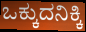
ಒಕ್ಕುದನಿಕ್ಕಿ